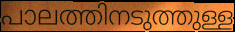
പാലത്തിനടുത്തുള്ള